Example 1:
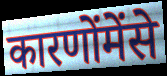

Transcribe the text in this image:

कारणोंमेंसे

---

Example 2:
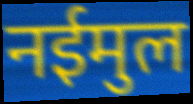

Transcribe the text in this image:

नईमुल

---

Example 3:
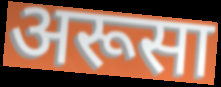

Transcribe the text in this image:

अरूसा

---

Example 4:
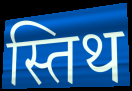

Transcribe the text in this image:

स्तिथ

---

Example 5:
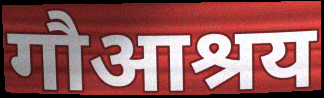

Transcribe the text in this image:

गौआश्रय